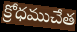
క్రోధముచేత